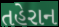
તહેરાન